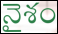
నైశం